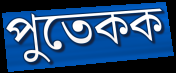
পুতেকক